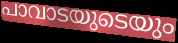
പാവാടയുടെയും